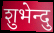
शुभेन्दु